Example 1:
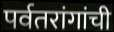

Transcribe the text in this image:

पर्वतरांगांची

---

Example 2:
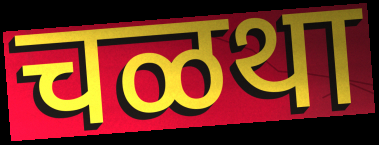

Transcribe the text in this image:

चळथा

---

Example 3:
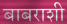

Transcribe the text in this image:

बाबराशी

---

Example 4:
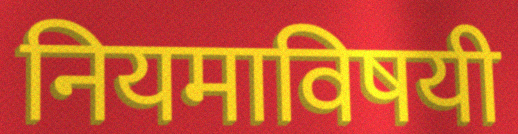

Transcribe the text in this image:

नियमाविषयी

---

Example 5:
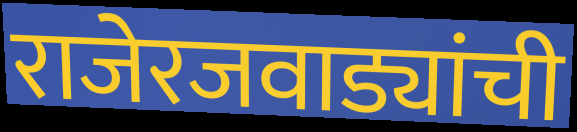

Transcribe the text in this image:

राजेरजवाड्यांची